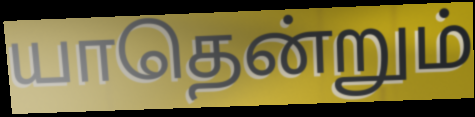
யாதென்றும்